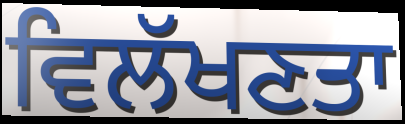
ਵਿਲੱਖਣਤਾ